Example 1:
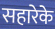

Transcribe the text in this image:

सहारेके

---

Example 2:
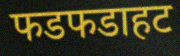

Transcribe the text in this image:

फडफडाहट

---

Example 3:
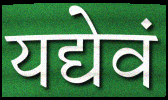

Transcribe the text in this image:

यद्येवं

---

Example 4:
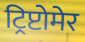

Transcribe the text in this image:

ट्रिप्टोमेर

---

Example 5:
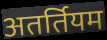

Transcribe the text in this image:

अतर्तियम